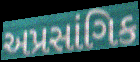
અપ્રસાંગિક